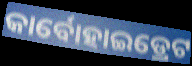
କାର୍ବୋହାଇଡ୍ରେଟ